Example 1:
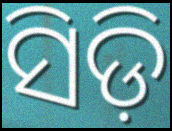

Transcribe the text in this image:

ସିଡ଼ି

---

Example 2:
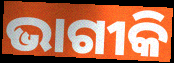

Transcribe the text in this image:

ଭାଗୀକି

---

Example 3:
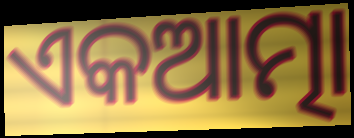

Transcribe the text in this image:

ଏକଆତ୍ମା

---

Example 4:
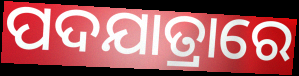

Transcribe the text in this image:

ପଦଯାତ୍ରାରେ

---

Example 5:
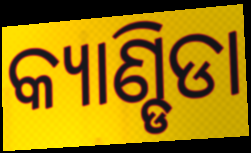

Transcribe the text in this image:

କ୍ୟାଣ୍ଡିଡା